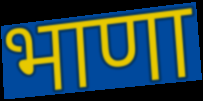
भाणा